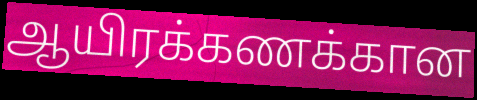
ஆயிரக்கணக்கான